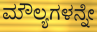
ಮೌಲ್ಯಗಳನ್ನೇ